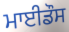
ਮਾਈਡੌਸ